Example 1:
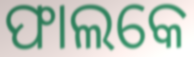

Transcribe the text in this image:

ଫାଲକେ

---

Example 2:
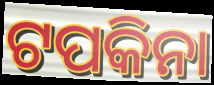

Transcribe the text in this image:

ଟପକିନା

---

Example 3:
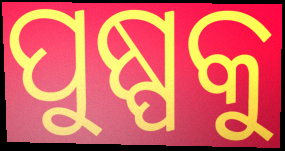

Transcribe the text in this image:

ପୁଷ୍ପକୁ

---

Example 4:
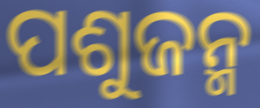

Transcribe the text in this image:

ପଶୁଜନ୍ମ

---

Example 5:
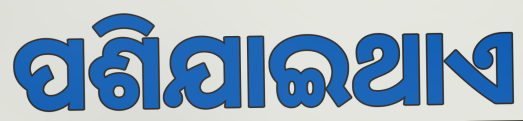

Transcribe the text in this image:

ପଶିଯାଇଥାଏ